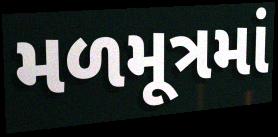
મળમૂત્રમાં